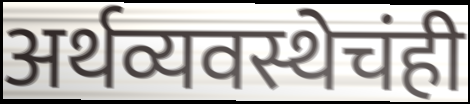
अर्थव्यवस्थेचंही